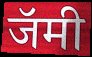
जॅमी